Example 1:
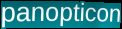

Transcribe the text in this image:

panopticon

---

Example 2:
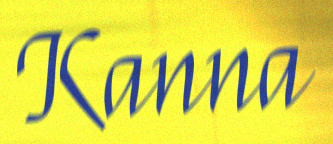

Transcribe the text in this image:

Kanna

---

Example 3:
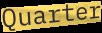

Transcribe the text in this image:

Quarter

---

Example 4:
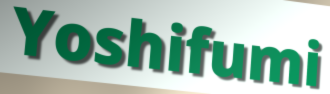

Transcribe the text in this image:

Yoshifumi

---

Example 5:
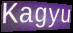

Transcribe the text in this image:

Kagyu